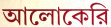
আলোকেরি